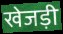
खेजड़ी